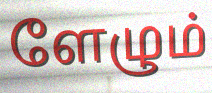
ளேழும்